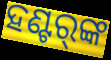
ହଣ୍ଟର୍‌ଙ୍କ